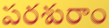
పరశురాం